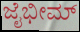
ಜೈಭೀಮ್